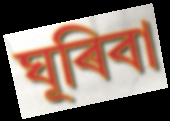
ঘূৰিবা